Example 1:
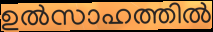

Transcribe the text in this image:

ഉൽസാഹത്തിൽ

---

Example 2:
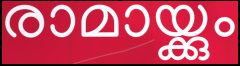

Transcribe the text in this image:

രാമായ്ക്കും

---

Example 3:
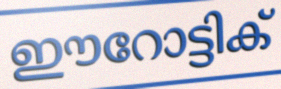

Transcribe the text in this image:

ഈറോട്ടിക്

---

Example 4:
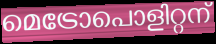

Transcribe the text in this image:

മെട്രോപൊളിറ്റന്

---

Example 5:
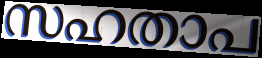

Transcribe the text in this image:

സഹതാപ